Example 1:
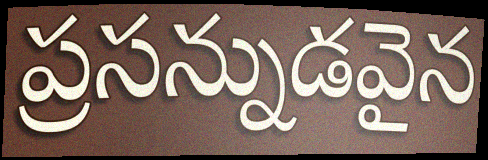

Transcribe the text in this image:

ప్రసన్నుడవైన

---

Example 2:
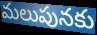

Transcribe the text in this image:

మలుపునకు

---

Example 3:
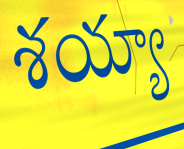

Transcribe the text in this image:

శయ్యా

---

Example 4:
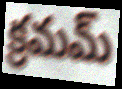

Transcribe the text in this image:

క్రమమ్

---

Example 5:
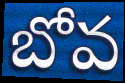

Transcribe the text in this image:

బోవ